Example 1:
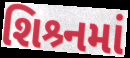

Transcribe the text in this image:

શિશ્ર્નમાં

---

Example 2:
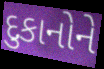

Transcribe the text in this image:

દુકાનોને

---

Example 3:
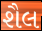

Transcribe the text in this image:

શૈલ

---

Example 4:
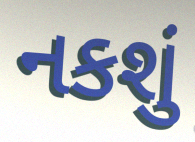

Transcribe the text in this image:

નકશું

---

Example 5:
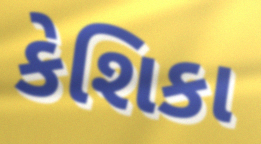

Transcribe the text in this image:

કેશિકા